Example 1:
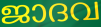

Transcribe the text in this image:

ജാദവ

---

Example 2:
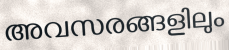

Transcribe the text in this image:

അവസരങ്ങളിലും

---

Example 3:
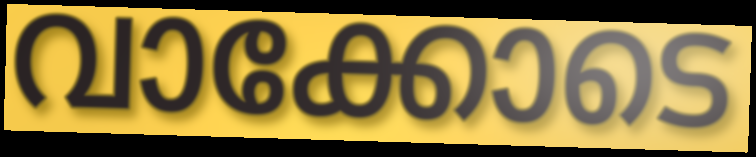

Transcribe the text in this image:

വാക്കോടെ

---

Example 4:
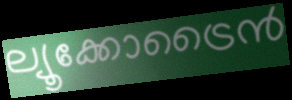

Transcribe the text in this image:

ല്യൂക്കോട്രൈൻ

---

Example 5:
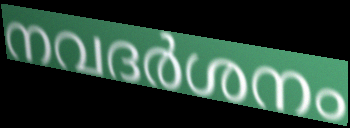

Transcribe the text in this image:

നവദർശനം